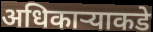
अधिकार्‍याकडे